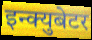
इन्क्‍युबेटर